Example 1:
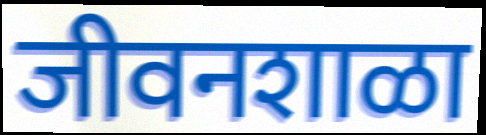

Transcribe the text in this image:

जीवनशाळा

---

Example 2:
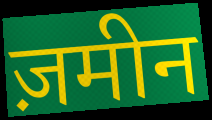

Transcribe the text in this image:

ज़मीन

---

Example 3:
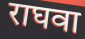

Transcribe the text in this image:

राघवा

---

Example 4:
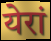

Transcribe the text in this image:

येरां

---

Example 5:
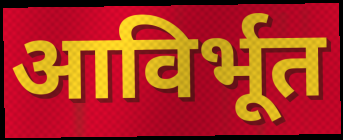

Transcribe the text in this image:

आविर्भूत